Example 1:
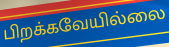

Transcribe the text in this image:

பிறக்கவேயில்லை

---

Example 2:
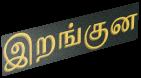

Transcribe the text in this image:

இறங்குன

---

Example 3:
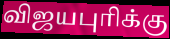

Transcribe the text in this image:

விஜயபுரிக்கு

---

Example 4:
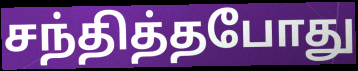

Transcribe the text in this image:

சந்தித்தபோது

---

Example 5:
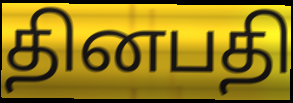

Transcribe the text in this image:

தினபதி